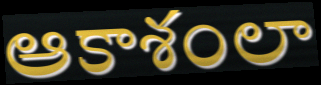
ఆకాశంలా